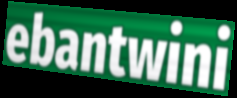
ebantwini